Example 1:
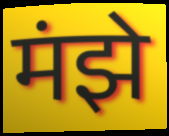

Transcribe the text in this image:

मंझे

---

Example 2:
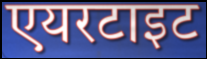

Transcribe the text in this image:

एयरटाइट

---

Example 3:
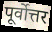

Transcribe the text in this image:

पूर्वोत्तर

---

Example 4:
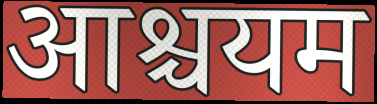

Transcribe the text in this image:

आश्चयम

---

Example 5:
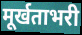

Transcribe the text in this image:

मूर्खताभरी